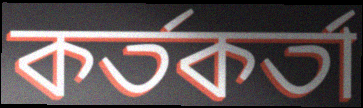
কর্তকর্তা